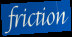
friction